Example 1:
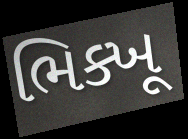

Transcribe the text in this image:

ભિક્ખૂ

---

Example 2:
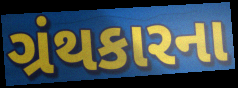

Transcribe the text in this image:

ગ્રંથકારના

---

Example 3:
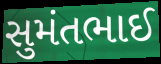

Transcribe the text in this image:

સુમંતભાઈ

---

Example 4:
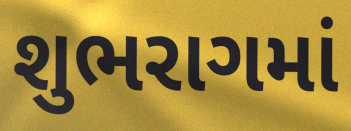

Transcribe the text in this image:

શુભરાગમાં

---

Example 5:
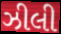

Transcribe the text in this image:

ઝીલી